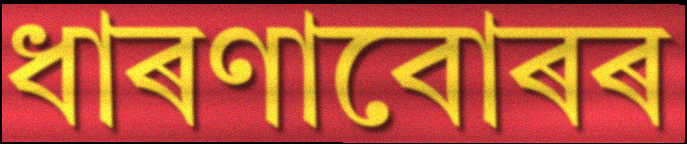
ধাৰণাবোৰৰ